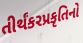
તીર્થંકરપ્રકૃતિનો